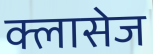
क्लासेज